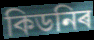
কিডনিৰ